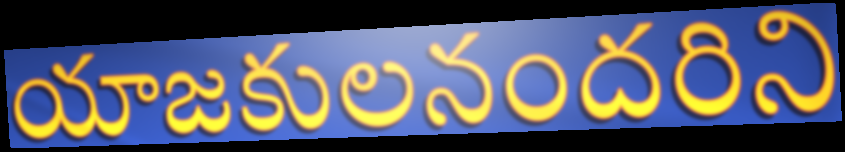
యాజకులనందరిని